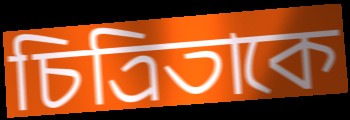
চিত্রিতাকে